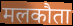
मलकौता